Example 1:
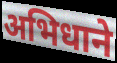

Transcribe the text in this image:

अभिधाने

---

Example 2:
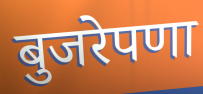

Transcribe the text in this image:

बुजरेपणा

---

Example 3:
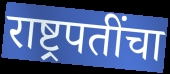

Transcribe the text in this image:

राष्ट्रपतींचा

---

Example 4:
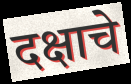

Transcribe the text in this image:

दक्षाचे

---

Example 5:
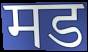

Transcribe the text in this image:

मड